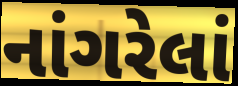
નાંગરેલાં